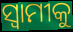
ସ୍ୱାମୀକୁ